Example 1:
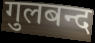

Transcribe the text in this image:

गुलबन्द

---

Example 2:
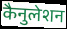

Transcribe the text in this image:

कैनुलेशन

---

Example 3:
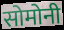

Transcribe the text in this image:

सोमोनी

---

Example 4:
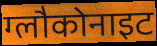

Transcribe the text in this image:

ग्लौकोनाइट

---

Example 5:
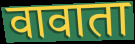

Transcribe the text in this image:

वावाता